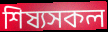
শিষ্যসকল